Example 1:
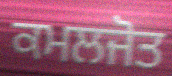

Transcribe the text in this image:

ਕਮਲਜੋਤ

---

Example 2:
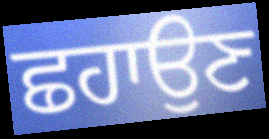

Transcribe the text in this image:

ਛਹਾਉਣ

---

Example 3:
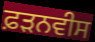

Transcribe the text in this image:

ਫ਼ੜਨਵੀਸ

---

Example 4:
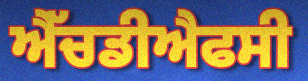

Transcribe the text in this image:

ਐੱਚਡੀਐਫਸੀ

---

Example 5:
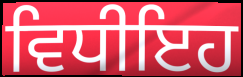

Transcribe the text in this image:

ਵਿਧੀਇਹ